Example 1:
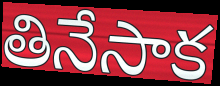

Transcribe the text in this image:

తినేసాక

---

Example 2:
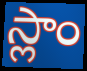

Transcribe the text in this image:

స్లాం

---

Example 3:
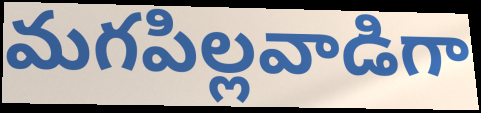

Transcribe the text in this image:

మగపిల్లవాడిగా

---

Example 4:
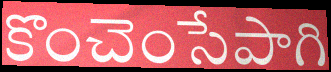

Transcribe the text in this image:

కొంచెంసేపాగి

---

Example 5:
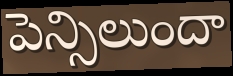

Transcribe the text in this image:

పెన్సిలుందా